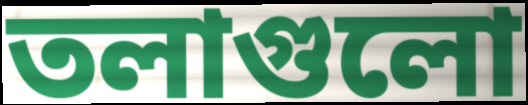
তলাগুলো